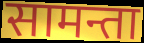
सामन्ता